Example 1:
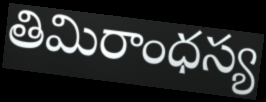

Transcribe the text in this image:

తిమిరాంధస్య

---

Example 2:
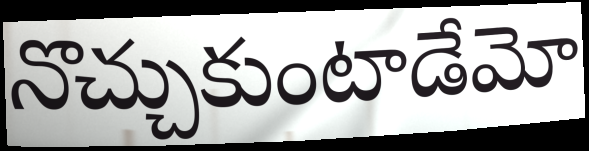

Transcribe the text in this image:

నొచ్చుకుంటాడేమో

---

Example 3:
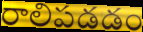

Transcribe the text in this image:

రాలిపడడం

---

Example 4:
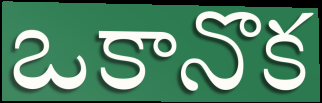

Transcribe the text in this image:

ఒకానొక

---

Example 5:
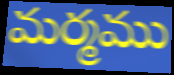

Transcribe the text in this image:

మర్మము